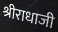
श्रीराधाजी